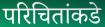
परिचितांकडे